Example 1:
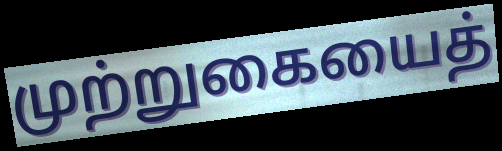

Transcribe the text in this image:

முற்றுகையைத்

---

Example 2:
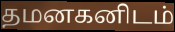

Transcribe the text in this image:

தமனகனிடம்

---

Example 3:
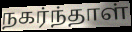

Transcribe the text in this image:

நகர்ந்தாள்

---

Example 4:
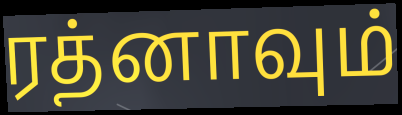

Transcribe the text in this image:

ரத்னாவும்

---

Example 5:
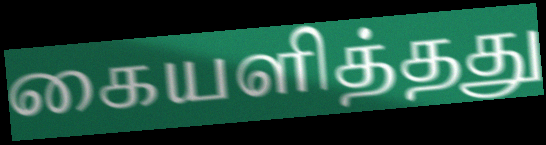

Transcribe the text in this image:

கையளித்தது